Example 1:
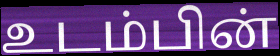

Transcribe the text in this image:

உடம்பின்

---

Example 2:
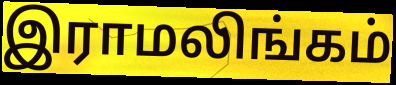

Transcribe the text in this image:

இராமலிங்கம்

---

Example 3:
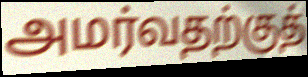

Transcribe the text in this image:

அமர்வதற்குத்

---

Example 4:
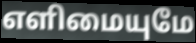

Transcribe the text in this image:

எளிமையுமே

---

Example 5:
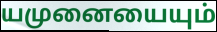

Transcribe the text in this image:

யமுனையையும்